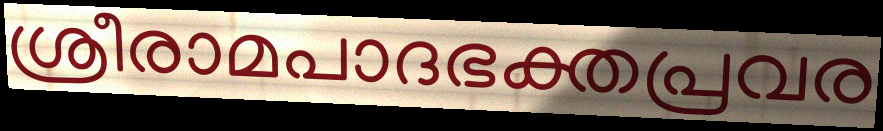
ശ്രീരാമപാദഭക്തപ്രവര